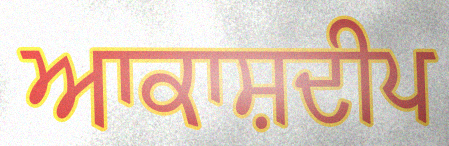
ਆਕਾਸ਼ਦੀਪ